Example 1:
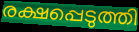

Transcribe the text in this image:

രക്ഷപ്പെടുത്തി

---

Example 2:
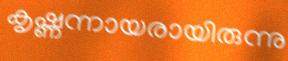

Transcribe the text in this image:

കൃഷ്ണന്നായരായിരുന്നു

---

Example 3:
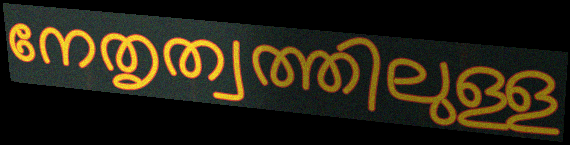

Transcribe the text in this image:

നേതൃത്വത്തിലുള്ള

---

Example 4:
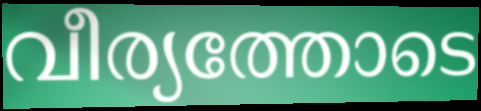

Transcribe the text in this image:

വീര്യത്തോടെ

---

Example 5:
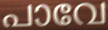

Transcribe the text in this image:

പാവേ